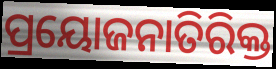
ପ୍ରୟୋଜନାତିରିକ୍ତ